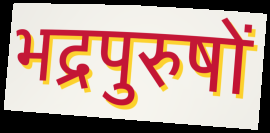
भद्रपुरुषों